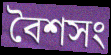
বৈশসং